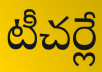
టీచర్లే